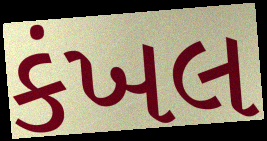
કંખલ